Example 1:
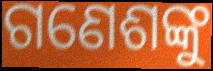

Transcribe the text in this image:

ଗଣେଶଙ୍କୁ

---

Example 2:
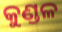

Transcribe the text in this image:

କୁଣ୍ଡଳ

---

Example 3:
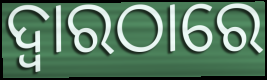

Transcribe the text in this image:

ଦ୍ୱାରଠାରେ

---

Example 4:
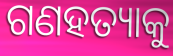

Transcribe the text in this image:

ଗଣହତ୍ୟାକୁ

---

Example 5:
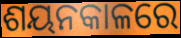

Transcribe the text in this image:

ଶୟନକାଳରେ